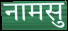
नामसु